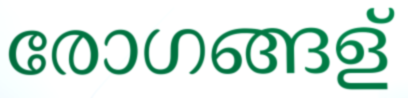
രോഗങ്ങള്